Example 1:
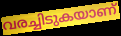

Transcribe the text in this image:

വരച്ചിടുകയാണ്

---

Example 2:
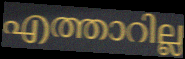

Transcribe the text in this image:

എത്താറില്ല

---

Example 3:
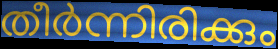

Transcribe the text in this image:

തീർന്നിരിക്കും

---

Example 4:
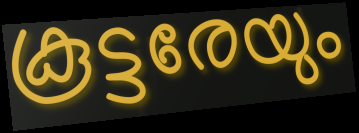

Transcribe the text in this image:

കൂട്ടരേയും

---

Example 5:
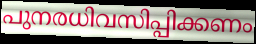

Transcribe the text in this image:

പുനരധിവസിപ്പിക്കണം